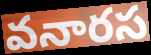
వనారస